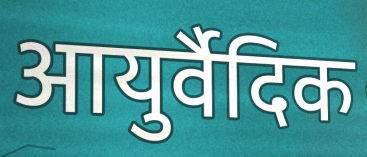
आयुर्वैदिक